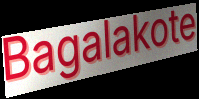
Bagalakote